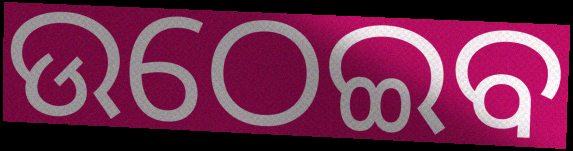
ଉଠେଇବ